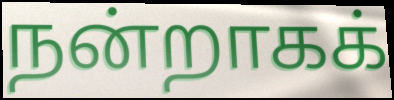
நன்றாகக்